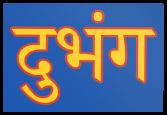
दुभंग